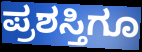
ಪ್ರಶಸ್ತಿಗೂ